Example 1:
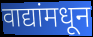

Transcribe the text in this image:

वाद्यांमधून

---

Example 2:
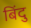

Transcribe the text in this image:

बिंदु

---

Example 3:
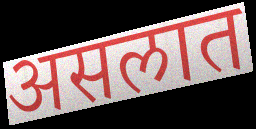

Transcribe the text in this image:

असलात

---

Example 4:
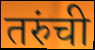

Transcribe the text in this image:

तरुंची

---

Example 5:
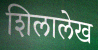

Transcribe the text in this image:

शिलालेख